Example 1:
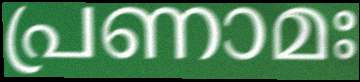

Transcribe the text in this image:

പ്രണാമഃ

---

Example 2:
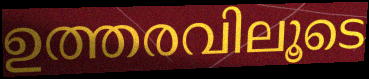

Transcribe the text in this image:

ഉത്തരവിലൂടെ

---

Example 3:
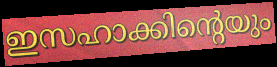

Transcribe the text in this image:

ഇസഹാക്കിന്റെയും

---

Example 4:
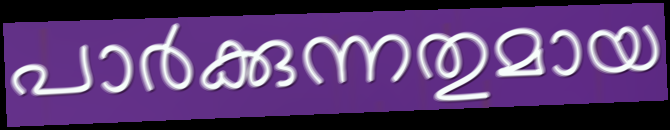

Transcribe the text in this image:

പാർക്കുന്നതുമായ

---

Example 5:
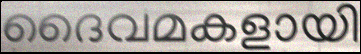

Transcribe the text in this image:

ദൈവമകളായി